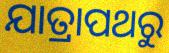
ଯାତ୍ରାପଥରୁ